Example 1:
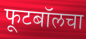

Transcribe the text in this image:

फूटबॉलचा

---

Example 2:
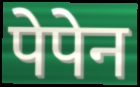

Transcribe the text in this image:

पेपेन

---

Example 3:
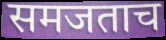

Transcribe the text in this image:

समजताच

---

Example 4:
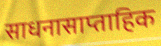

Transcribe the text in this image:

साधनासाप्ताहिक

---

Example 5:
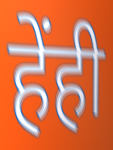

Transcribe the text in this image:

हेंही